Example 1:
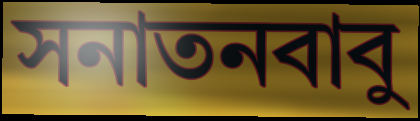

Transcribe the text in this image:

সনাতনবাবু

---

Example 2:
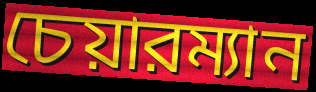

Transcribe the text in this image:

চেয়ারম্যান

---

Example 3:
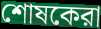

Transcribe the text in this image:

শোষকেরা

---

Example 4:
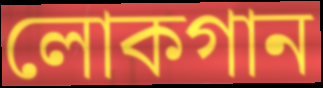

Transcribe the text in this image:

লোকগান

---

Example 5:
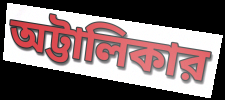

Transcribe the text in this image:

অট্টালিকার